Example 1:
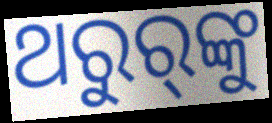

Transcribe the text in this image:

ଥରୁର୍‌ଙ୍କୁ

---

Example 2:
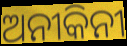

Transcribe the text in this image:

ଅନୀକିନୀ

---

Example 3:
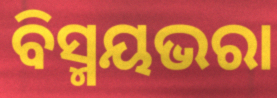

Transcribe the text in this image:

ବିସ୍ମୟଭରା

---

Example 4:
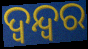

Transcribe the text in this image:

ଦ୍ଵନ୍ଦ୍ୱର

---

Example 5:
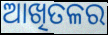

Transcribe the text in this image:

ଆଖିତଳର